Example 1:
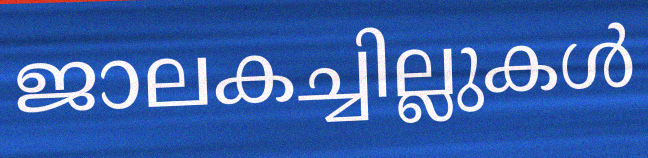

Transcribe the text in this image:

ജാലകച്ചില്ലുകൾ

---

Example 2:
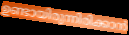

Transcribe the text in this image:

ഉണ്ടായിരുന്നിരിക്കാൻ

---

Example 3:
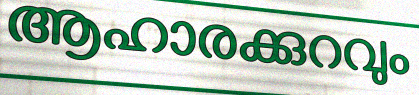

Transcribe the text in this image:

ആഹാരക്കുറവും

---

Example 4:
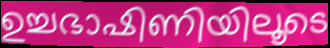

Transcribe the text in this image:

ഉച്ചഭാഷിണിയിലൂടെ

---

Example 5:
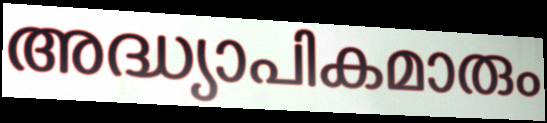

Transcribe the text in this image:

അദ്ധ്യാപികമാരും